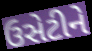
ઉસેટીને